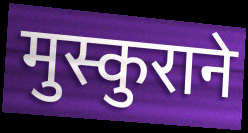
मुस्कुराने